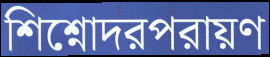
শিশ্নোদরপরায়ণ